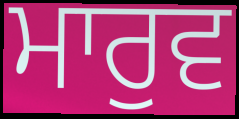
ਮਾਰੁਵ